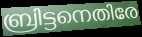
ബ്രിട്ടനെതിരേ